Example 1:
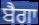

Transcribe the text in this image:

ਬੈਗਾ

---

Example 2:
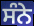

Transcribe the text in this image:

ਸੰਨੇ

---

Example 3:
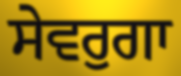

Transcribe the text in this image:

ਸੇਵਰੁਗਾ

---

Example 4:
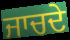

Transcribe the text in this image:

ਜਾਚਦੇ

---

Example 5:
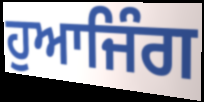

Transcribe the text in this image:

ਹੁਆਜਿੰਗ